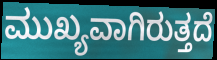
ಮುಖ್ಯವಾಗಿರುತ್ತದೆ